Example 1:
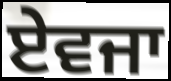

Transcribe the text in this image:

ਏਵਜਾ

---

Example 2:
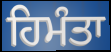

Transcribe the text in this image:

ਹਿਮੰਤਾ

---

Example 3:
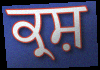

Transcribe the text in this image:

ਕ੍ਰਸ਼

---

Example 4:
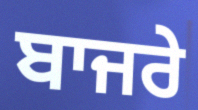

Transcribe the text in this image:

ਬਾਜਰੇ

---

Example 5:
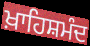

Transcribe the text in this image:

ਖ਼ਾਹਿਸ਼ਮੰਦ